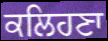
ਕਲਿਹਣਾ